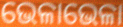
ଭେଳାଭେଳା